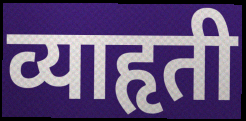
व्याहृती